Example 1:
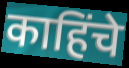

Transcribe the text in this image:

काहिंचे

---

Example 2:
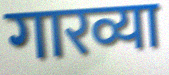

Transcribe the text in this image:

गारव्या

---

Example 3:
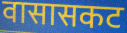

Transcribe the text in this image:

वासासकट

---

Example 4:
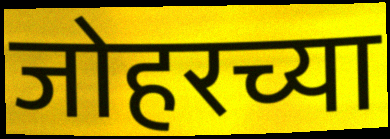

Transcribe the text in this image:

जोहरच्या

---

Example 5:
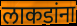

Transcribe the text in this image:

लाकडांना